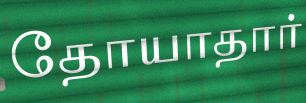
தோயாதார்